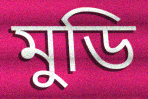
মুডি